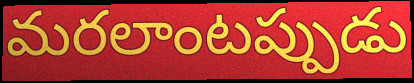
మరలాంటప్పుడు